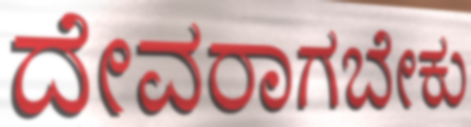
ದೇವರಾಗಬೇಕು